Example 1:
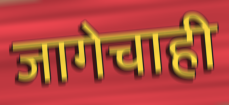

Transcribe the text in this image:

जागेचाही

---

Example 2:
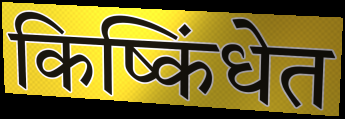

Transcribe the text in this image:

किष्किंधेत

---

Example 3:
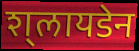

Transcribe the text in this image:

श्लायडेन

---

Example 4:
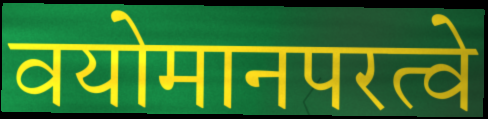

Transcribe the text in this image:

वयोमानपरत्वे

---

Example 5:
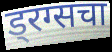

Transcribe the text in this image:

ड्रग्सचा